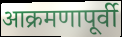
आक्रमणापूर्वी